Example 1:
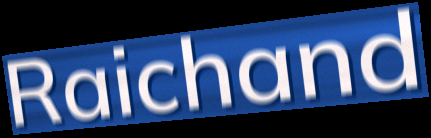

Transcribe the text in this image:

Raichand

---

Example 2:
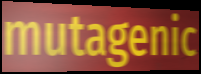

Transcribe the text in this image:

mutagenic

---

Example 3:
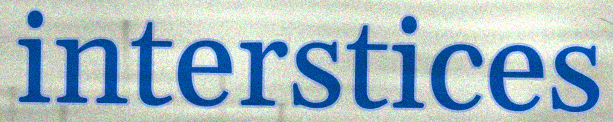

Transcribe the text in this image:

interstices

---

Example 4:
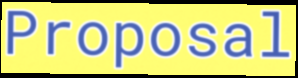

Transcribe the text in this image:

Proposal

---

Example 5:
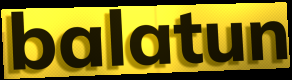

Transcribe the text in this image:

balatun